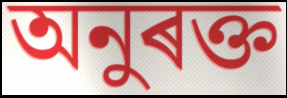
অনুৰক্ত